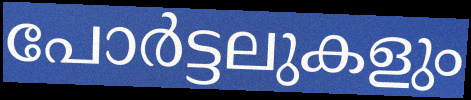
പോർട്ടലുകളും